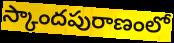
స్కాందపురాణంలో